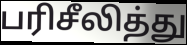
பரிசீலித்து